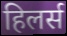
हिलर्स